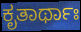
ಕೃತಾರ್ಥಾಃ